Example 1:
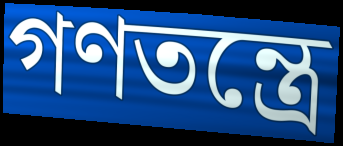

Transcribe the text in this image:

গণতন্ত্রে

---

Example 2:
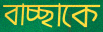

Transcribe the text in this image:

বাচ্ছাকে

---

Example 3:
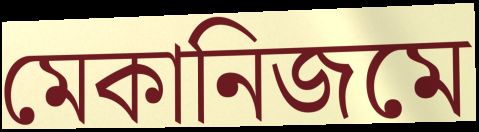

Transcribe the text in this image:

মেকানিজমে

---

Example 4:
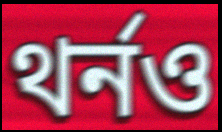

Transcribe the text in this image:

থর্নও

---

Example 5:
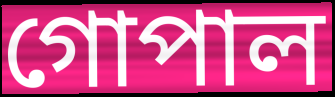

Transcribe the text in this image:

গোপাল